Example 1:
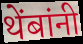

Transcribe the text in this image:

थेंबांनी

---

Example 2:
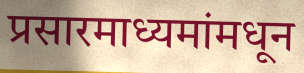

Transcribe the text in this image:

प्रसारमाध्यमांमधून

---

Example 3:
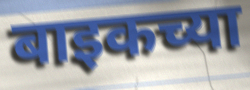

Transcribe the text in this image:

बाइकच्या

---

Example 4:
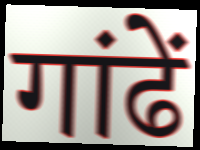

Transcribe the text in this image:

गांढें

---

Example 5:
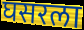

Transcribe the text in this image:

घसरला